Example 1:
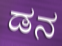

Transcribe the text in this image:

ಡನ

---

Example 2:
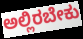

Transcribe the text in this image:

ಅಲ್ಲಿರಬೇಕು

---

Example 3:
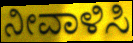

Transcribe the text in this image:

ನೀವಾಳಿಸಿ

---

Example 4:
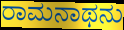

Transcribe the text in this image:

ರಾಮನಾಥನು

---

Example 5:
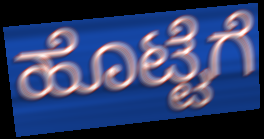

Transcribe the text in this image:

ಹೊಟ್ಟೆಗೆ